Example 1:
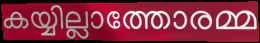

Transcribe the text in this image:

കയ്യില്ലാത്തോരമ്മ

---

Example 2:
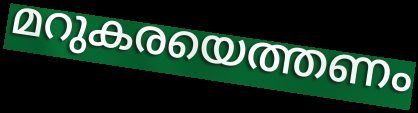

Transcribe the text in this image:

മറുകരയെത്തണം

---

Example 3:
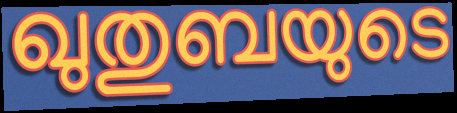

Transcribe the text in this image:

ഖുതുബയുടെ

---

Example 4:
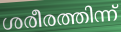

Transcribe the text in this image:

ശരീരത്തിന്ന്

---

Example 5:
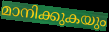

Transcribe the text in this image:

മാനിക്കുകയും